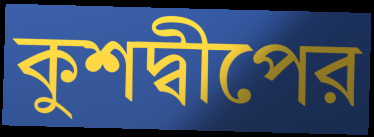
কুশদ্বীপের